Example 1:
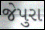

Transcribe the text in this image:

જેપુરા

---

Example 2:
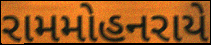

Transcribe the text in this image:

રામમોહનરાયે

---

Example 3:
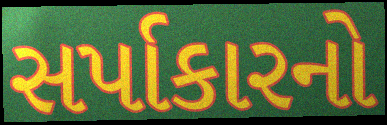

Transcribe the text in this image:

સર્પાકારનો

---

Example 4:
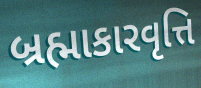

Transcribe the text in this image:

બ્રહ્માકારવૃત્તિ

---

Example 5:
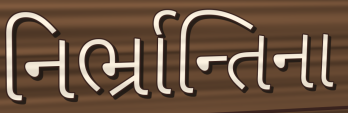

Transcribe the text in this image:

નિર્ભ્રાન્તિના